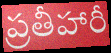
ప్రతీహారీ